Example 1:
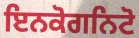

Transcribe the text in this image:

ਇਨਕੋਗਨਿਟੋ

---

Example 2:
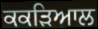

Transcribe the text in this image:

ਕਕੜਿਆਲ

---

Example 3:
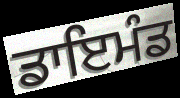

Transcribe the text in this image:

ਡਾਇਮੰਡ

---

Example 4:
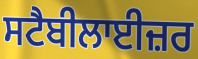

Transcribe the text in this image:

ਸਟੈਬੀਲਾਈਜ਼ਰ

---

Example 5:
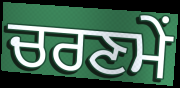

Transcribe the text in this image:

ਚਰਣਮੇਂ